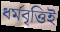
ধর্মবৃত্তিই